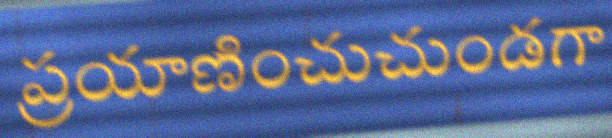
ప్రయాణించుచుండగా